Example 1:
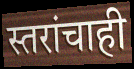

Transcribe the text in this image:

स्तरांचाही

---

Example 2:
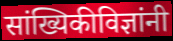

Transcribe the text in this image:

सांख्यिकीविज्ञांनी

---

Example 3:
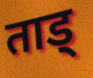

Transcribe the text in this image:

ताड्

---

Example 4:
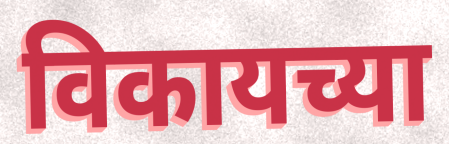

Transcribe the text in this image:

विकायच्या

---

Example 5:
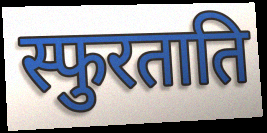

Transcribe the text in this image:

स्फुरताति